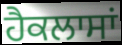
ਹੈਕਲਾਸਾਂ